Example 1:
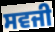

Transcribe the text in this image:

ਸਵਜੀ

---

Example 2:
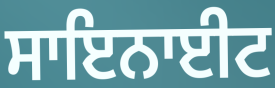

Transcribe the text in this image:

ਸਾਇਨਾਈਟ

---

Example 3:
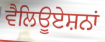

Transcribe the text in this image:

ਵੈਲਿਊਏਸ਼ਨਾਂ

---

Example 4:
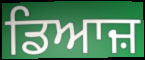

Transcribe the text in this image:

ਡਿਆਜ਼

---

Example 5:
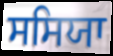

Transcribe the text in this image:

ਸਸਿਯਾ